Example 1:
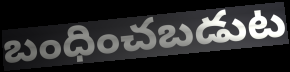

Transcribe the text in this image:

బంధించబడుట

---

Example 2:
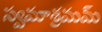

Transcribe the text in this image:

స్వమాశ్రమమ్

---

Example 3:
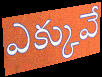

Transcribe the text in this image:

ఎక్కువే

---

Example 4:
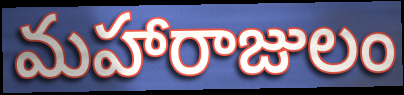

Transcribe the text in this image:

మహారాజులం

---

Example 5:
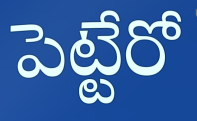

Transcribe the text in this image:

పెట్టేరో